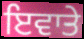
ਇਵਾਤੇ